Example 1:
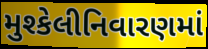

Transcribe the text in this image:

મુશ્કેલીનિવારણમાં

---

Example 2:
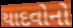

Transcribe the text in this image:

યાદવોનો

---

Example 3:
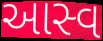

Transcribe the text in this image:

આસ્વ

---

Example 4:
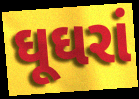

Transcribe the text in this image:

ઘૂઘરાં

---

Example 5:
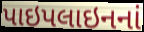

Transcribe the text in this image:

પાઇપલાઇનનાં